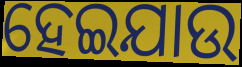
ହେଇଯାଉ